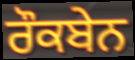
ਰੌਕਬੇਨ